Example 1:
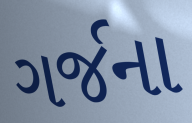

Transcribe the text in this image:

ગર્જના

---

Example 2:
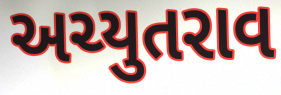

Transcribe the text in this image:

અચ્યુતરાવ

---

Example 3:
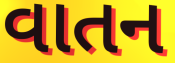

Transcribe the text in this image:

વાતન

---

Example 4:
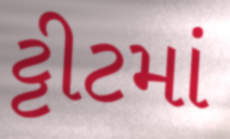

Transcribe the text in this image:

ટ્ટીટમાં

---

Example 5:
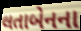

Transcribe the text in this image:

લતાબેનના